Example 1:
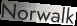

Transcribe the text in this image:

Norwalk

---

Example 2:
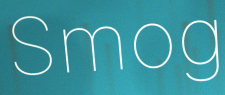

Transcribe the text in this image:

Smog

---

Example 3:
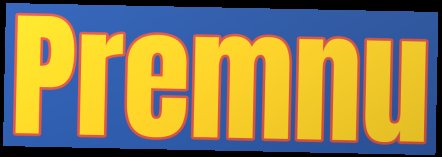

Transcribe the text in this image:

Premnu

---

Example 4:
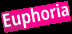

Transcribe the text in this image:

Euphoria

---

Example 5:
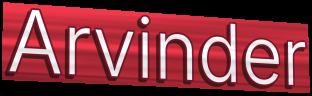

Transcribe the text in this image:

Arvinder